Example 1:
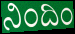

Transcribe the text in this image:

ನಿಂದಿಂ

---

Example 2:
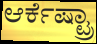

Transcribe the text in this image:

ಆರ್ಕೆಷ್ಟ್ರಾ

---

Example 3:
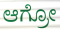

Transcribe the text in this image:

ಆಗ್ರೋ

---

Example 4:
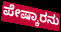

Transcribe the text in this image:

ಪೇಷ್ಕಾರನು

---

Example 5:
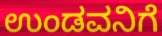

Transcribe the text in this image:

ಉಂಡವನಿಗೆ